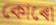
কোৰো